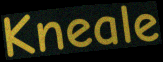
Kneale